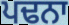
ਪਢਨਾ